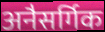
अनैसर्गिक